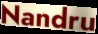
Nandru